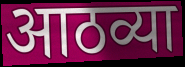
आठव्या